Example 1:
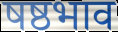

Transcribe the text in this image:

षष्ठभाव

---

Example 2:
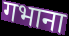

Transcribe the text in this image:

गभाना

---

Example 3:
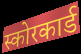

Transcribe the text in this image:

स्कोरकार्ड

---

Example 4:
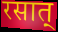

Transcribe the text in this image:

रसात्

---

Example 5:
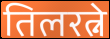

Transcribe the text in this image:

तिलरत्ने